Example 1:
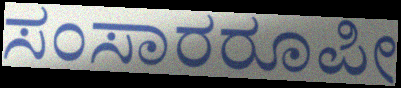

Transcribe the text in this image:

ಸಂಸಾರರೂಪೀ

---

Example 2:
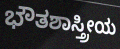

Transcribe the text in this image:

ಭೌತಶಾಸ್ತ್ರೀಯ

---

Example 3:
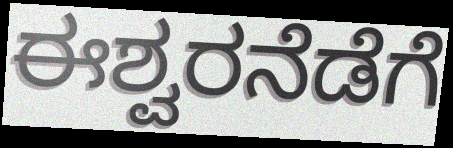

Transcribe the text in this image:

ಈಶ್ವರನೆಡೆಗೆ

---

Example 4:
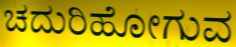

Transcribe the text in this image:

ಚದುರಿಹೋಗುವ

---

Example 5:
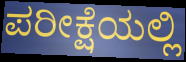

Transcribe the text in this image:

ಪರೀಕ್ಷೆಯಲ್ಲಿ